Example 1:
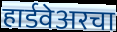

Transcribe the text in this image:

हार्डवेअरचा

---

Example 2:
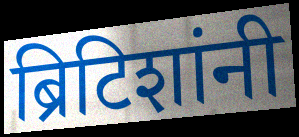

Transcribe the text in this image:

ब्रिटिशांनी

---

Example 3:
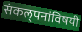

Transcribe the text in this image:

संकल्पनांविषयी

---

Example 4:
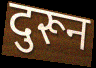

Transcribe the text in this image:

दुरून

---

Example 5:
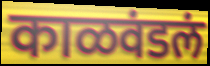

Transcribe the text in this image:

काळवंडलं